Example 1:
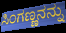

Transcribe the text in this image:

ಸಿಂಗಣ್ಣನನ್ನು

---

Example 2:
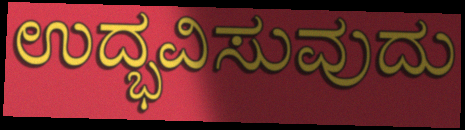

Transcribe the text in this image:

ಉದ್ಭವಿಸುವುದು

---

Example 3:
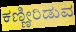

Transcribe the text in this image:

ಕಣ್ಣೀರಿಡುವ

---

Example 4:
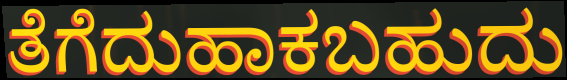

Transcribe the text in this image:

ತೆಗೆದುಹಾಕಬಹುದು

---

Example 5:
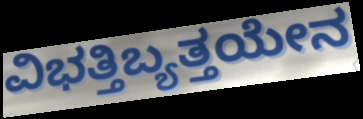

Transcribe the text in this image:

ವಿಭತ್ತಿಬ್ಯತ್ತಯೇನ